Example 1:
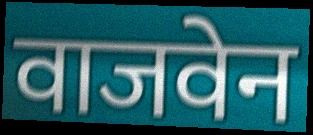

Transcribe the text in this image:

वाजवेन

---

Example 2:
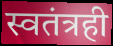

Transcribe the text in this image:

स्वतंत्रही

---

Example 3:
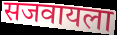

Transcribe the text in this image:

सजवायला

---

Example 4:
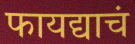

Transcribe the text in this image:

फायद्याचं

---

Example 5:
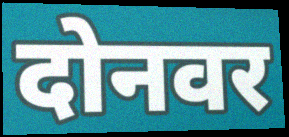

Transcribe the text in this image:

दोनवर